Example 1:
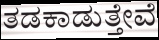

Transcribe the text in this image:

ತಡಕಾಡುತ್ತೇವೆ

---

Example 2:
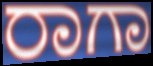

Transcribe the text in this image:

ರಾಗಾ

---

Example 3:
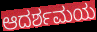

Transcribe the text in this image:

ಆದರ್ಶಮಯ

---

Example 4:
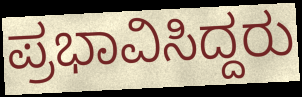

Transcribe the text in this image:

ಪ್ರಭಾವಿಸಿದ್ದರು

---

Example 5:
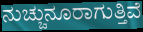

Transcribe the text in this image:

ನುಚ್ಚುನೂರಾಗುತ್ತಿವೆ